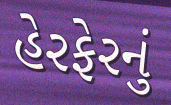
હેરફેરનું